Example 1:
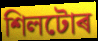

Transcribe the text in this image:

শিলটোৰ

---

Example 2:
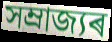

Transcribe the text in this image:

সম্ৰাজ্যৰ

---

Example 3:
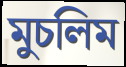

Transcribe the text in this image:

মুচলিম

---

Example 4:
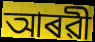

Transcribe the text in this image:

আৰৱী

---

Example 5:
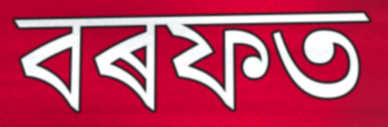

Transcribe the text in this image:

বৰফত